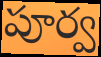
పూర్వ